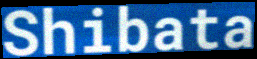
Shibata